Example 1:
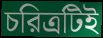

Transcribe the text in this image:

চরিত্রটিই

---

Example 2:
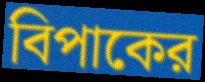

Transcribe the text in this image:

বিপাকের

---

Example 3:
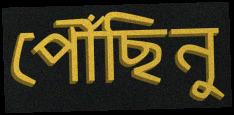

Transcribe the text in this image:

পৌঁছিনু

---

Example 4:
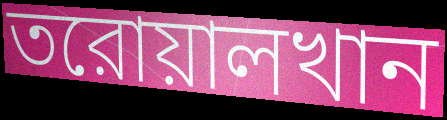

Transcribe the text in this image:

তরোয়ালখান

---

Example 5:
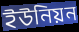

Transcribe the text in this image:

ইউনিয়ন